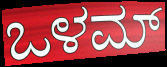
ಒಳಮ್